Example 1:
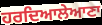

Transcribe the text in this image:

ਹਰਦਿਆਲੇਆਣਾ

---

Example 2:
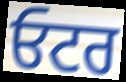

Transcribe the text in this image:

ਓਟਰ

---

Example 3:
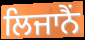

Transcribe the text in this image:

ਲਿਜਾਨੈਂ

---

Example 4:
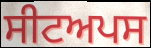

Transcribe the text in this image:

ਸੀਟਅਪਸ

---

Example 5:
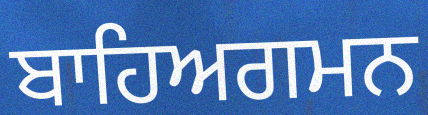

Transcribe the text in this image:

ਬਾਹਿਅਗਮਨ